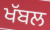
ਖੱਬਲ